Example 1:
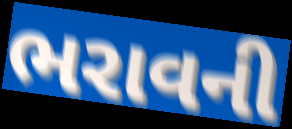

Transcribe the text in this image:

ભરાવની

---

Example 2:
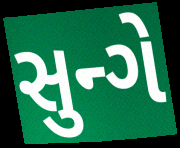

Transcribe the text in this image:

સુન્ગે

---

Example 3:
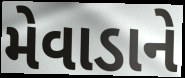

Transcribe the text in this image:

મેવાડાને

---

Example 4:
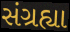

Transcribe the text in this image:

સંગ્રહ્યા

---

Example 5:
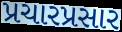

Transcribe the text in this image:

પ્રચારપ્રસાર